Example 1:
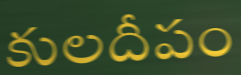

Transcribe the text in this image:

కులదీపం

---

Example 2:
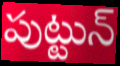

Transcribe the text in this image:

పుట్టున్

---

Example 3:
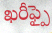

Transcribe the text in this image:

ఖరీఫ్పై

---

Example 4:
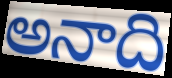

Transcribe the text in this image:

అనాది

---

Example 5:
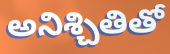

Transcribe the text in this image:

అనిశ్చితితో